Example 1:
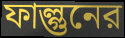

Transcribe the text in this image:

ফাল্গুনের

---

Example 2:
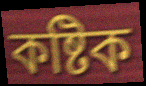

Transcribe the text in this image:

কষ্টিক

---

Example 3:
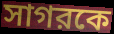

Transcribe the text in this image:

সাগরকে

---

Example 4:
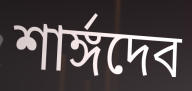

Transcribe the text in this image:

শার্ঙ্গদেব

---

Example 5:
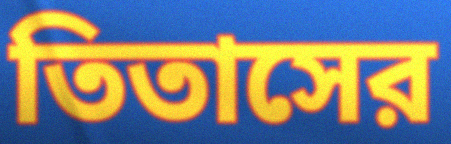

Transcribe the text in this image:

তিতাসের